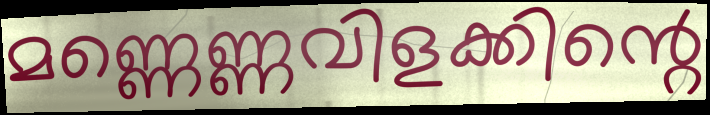
മണ്ണെണ്ണവിളക്കിന്റെ